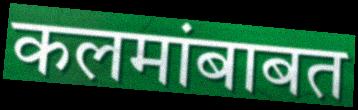
कलमांबाबत